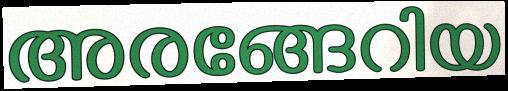
അരങ്ങേറിയ